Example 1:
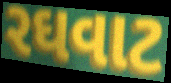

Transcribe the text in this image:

રઘવાટ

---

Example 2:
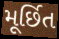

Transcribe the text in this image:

મૂર્છિત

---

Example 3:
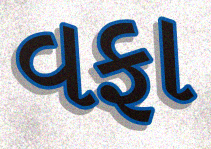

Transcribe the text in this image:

વફા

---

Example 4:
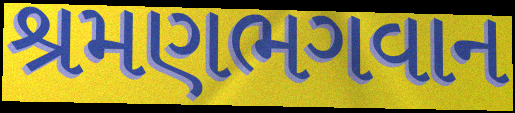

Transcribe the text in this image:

શ્રમણભગવાન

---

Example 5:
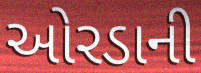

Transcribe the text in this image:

ઓરડાની